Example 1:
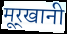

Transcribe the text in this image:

मूर्खानी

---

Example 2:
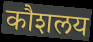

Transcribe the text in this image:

कौशलय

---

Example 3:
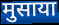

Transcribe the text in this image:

मुसाया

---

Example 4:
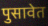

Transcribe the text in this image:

पुसावेत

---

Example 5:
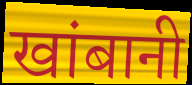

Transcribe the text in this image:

खांबानी